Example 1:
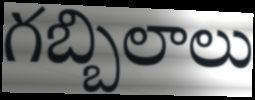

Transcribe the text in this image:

గబ్బిలాలు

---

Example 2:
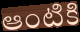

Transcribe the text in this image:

ఆంటికి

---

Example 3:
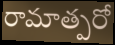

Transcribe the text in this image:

రామాత్పరో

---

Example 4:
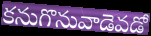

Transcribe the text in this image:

కనుగొనువాడెవడో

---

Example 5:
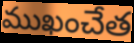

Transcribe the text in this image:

ముఖంచేత